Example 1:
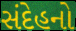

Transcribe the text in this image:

સંદેહનો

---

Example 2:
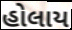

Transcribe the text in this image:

હોલાય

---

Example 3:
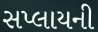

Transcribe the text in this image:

સપ્લાયની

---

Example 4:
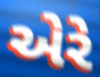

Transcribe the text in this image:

એરે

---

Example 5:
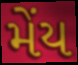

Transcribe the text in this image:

મેંય